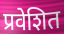
प्रवेशित